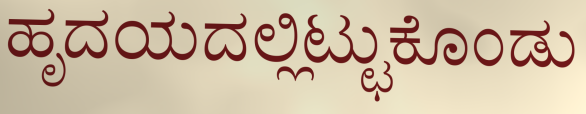
ಹೃದಯದಲ್ಲಿಟ್ಟುಕೊಂಡು